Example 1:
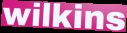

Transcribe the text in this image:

wilkins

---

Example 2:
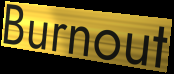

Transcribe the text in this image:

Burnout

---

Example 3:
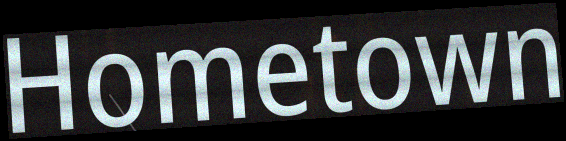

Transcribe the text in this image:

Hometown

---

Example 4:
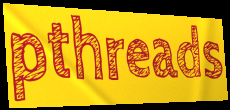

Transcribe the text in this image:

pthreads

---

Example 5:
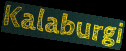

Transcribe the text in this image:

Kalaburgi